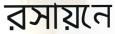
রসায়নে